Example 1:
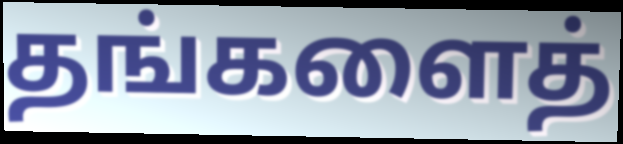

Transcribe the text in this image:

தங்களைத்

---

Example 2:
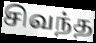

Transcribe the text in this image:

சிவந்த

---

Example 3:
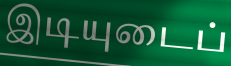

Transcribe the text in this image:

இடியுடைப்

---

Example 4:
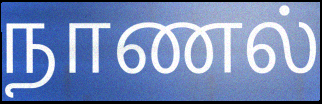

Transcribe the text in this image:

நாணல்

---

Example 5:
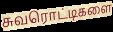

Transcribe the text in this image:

சுவரொட்டிகளை